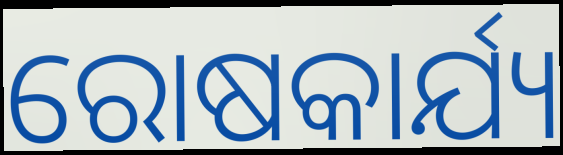
ରୋଷକାର୍ଯ୍ୟ